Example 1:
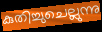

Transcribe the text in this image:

കുതിച്ചുചെല്ലുന്നു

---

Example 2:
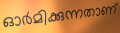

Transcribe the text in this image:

ഓർമിക്കുന്നതാണ്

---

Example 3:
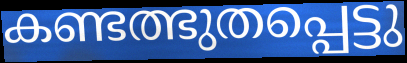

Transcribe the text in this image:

കണ്ടത്ഭുതപ്പെട്ടു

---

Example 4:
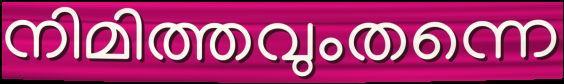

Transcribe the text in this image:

നിമിത്തവുംതന്നെ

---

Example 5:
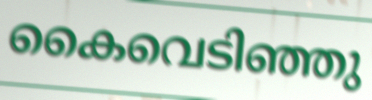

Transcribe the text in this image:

കൈവെടിഞ്ഞു